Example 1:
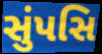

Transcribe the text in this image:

સુંપસિ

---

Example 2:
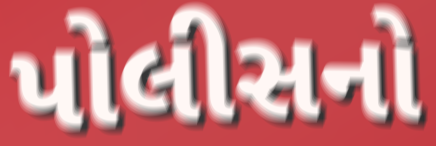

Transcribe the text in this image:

પોલીસનો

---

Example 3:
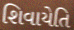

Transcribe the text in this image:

શિવાયેતિ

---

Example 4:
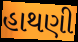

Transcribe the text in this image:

હાથણી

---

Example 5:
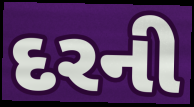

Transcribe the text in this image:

દરની